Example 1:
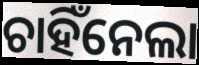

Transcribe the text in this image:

ଚାହିଁନେଲା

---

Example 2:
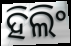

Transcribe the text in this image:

ହିଲିଂ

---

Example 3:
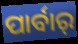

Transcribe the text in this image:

ପାର୍ବାର୍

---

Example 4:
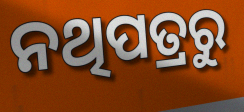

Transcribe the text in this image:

ନଥିପତ୍ରରୁ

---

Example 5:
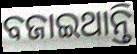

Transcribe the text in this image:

ବଜାଇଥାନ୍ତି